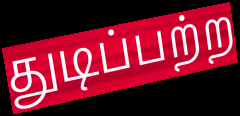
துடிப்பற்ற